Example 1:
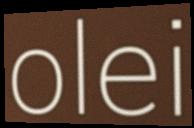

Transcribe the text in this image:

olei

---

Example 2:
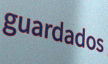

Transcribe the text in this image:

guardados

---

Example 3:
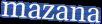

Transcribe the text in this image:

mazana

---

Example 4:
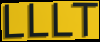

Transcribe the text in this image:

LLLT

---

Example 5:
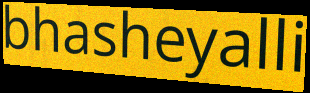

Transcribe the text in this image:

bhasheyalli